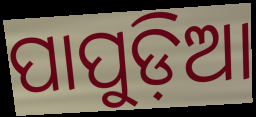
ପାପୁଡ଼ିଆ